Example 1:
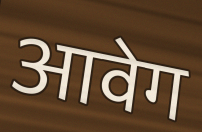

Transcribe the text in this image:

आवेग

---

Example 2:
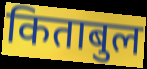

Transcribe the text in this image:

किताबुल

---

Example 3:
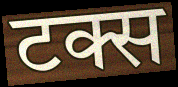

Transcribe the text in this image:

टक्स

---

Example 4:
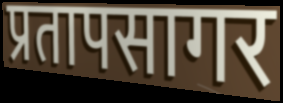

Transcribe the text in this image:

प्रतापसागर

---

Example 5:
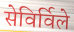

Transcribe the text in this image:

सेविर्विले